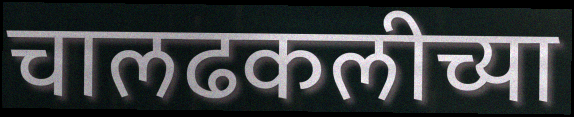
चालढकलीच्या